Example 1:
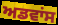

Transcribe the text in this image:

ਅਡਵਾਂਸ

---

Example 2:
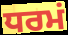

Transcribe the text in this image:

ਧਰਮਂ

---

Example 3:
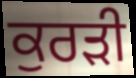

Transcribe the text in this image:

ਕੁਰੜੀ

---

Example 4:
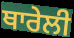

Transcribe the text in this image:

ਥਾਰੇਲੀ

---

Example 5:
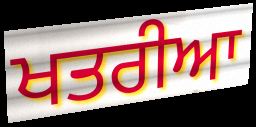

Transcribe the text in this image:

ਖਤਰੀਆ